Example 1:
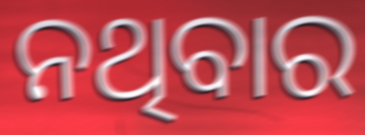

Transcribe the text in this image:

ନଥିବାର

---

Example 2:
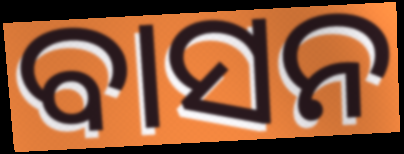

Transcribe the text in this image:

ବାସନ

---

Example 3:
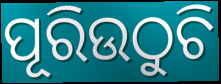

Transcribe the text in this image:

ପୂରିଉଠୁଚି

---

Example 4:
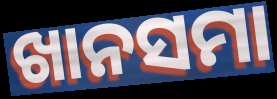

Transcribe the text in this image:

ଖାନସମା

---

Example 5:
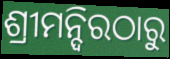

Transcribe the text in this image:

ଶ୍ରୀମନ୍ଦିରଠାରୁ